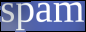
spam